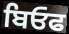
ਬਿਓਫ